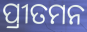
ପ୍ରୀତମନ